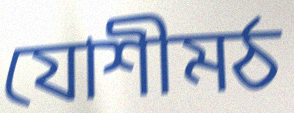
যোশীমঠ